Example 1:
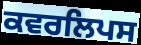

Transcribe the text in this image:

ਕਵਰਲਿਪਸ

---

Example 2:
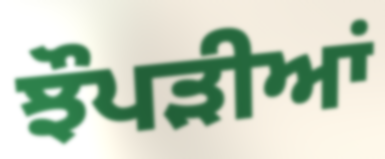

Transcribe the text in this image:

ਝੌਪੜੀਆਂ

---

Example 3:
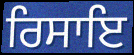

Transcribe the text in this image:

ਰਿਸਾਇ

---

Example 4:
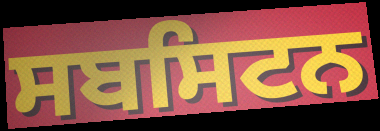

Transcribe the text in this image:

ਸਬਸਿਟਨ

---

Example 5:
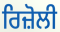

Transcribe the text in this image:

ਰਿਜ਼ੋਲੀ